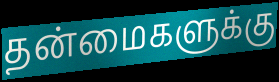
தன்மைகளுக்கு